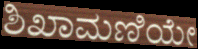
ಶಿಖಾಮಣಿಯೇ